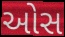
ઓસ